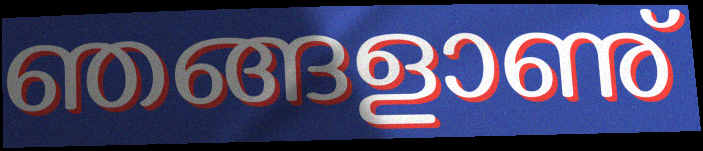
ഞങ്ങളാണു്